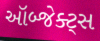
ઑબ્જેક્ટ્સ